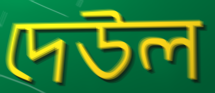
দেউল